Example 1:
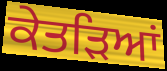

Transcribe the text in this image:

ਕੇਤੜਿਆਂ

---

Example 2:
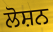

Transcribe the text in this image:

ਲੋਸ਼ਨ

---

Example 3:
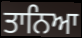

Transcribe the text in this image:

ਤਾਨਿਆ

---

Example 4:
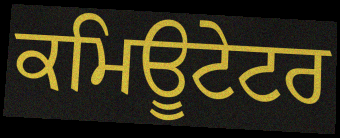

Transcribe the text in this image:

ਕਮਿਊਟੇਟਰ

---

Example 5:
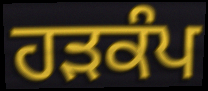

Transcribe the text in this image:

ਹੜਕੰਪ